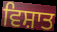
ਵਿਸ਼ਾਤ